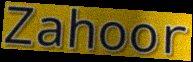
Zahoor